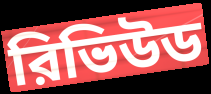
রিভিউড